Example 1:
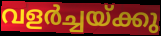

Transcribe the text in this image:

വളർച്ചയ്ക്കു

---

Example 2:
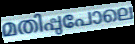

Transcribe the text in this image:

മതിപ്പുപോലെ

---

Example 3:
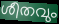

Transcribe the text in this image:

ശീതവും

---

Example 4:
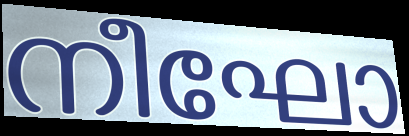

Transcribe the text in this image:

നീഘോ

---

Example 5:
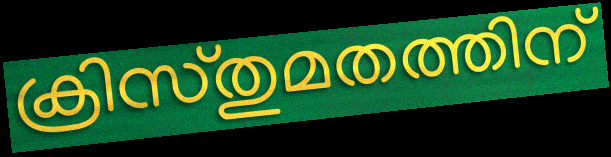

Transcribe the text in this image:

ക്രിസ്തുമതത്തിന്